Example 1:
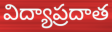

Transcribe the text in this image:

విద్యాప్రదాత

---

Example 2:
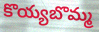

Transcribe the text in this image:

కొయ్యబొమ్మ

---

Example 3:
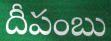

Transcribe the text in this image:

దీపంబు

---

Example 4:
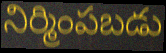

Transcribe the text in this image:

నిర్మింపబడు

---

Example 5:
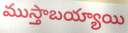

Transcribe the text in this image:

ముస్తాబయ్యాయి